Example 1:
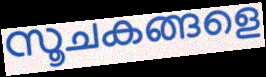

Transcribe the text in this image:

സൂചകങ്ങളെ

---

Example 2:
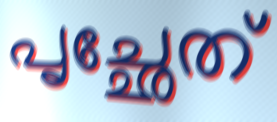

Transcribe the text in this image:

പൃച്ഛേത്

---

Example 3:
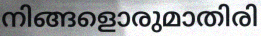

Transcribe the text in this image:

നിങ്ങളൊരുമാതിരി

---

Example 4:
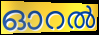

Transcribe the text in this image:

ഓറൽ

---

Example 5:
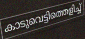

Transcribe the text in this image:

കാടുവെട്ടിത്തെളിച്ച്